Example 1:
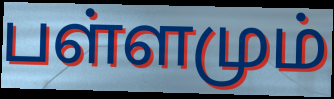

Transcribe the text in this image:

பள்ளமும்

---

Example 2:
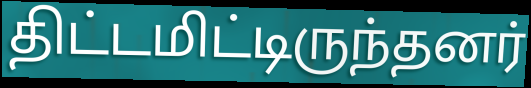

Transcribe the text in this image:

திட்டமிட்டிருந்தனர்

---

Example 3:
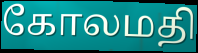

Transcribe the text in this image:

கோலமதி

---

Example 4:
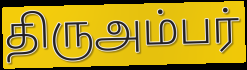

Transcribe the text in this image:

திருஅம்பர்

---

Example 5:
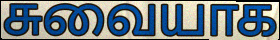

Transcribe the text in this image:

சுவையாக